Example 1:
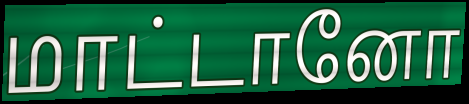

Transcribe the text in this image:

மாட்டானோ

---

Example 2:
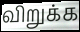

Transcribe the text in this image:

விறுக்க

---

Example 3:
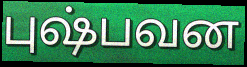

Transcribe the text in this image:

புஷ்பவன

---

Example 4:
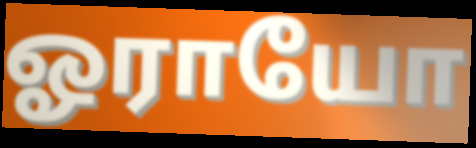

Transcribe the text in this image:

ஓராயோ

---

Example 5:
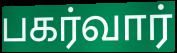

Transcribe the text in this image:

பகர்வார்